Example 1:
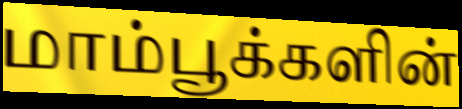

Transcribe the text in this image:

மாம்பூக்களின்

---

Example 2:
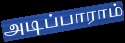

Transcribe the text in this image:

அடிப்பாராம்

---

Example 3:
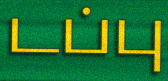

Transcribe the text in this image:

டப்பு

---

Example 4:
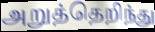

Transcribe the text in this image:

அறுத்தெறிந்து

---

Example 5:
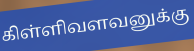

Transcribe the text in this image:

கிள்ளிவளவனுக்கு